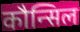
कौन्सिल